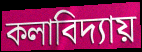
কলাবিদ্যায়